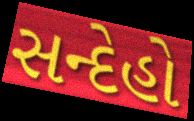
સન્દેહો